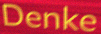
Denke